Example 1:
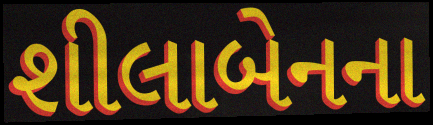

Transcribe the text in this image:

શીલાબેનના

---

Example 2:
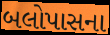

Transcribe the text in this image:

બલોપાસના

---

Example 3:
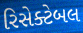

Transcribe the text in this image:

રિસેક્ટેબલ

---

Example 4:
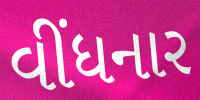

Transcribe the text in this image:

વીંધનાર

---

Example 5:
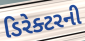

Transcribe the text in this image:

ડિરેક્ટરની